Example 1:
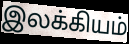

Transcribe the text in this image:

இலக்கியம்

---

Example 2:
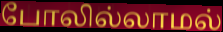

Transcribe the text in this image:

போலில்லாமல்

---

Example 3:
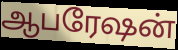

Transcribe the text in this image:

ஆபரேஷன்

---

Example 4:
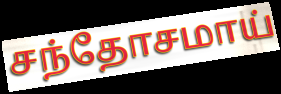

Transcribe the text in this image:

சந்தோசமாய்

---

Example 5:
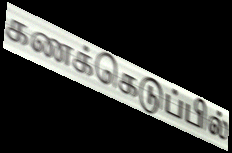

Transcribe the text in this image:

கணக்கெடுப்பில்